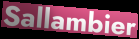
Sallambier